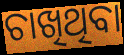
ଚାଖିଥିବା